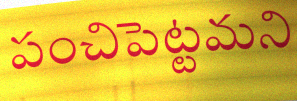
పంచిపెట్టమని